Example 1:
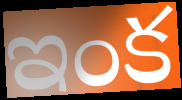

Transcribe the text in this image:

ఇంక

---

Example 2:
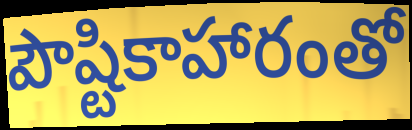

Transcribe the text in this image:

పౌష్టికాహారంతో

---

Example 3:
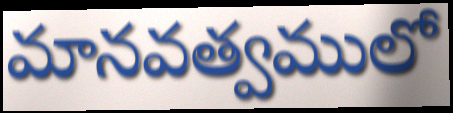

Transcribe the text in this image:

మానవత్వములో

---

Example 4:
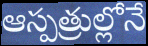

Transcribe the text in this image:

ఆస్పత్రుల్లోనే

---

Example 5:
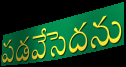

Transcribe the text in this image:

పడవేసెదను